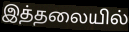
இத்தலையில்